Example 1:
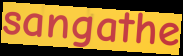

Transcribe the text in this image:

sangathe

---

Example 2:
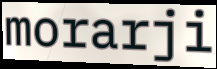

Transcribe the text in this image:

morarji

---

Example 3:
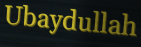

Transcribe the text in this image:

Ubaydullah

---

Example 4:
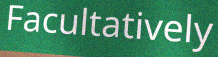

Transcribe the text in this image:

Facultatively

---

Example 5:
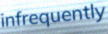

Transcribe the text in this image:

infrequently